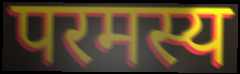
परमस्य